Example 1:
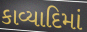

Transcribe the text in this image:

કાવ્યાદિમાં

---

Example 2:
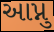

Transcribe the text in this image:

આપ્નુ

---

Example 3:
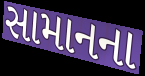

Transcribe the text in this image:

સામાનના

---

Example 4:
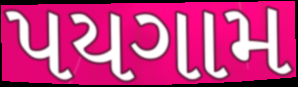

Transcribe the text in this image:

પયગામ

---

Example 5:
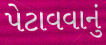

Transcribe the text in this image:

પેટાવવાનું